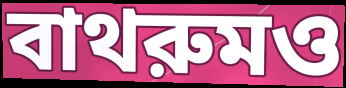
বাথরুমও